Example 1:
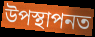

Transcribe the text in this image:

উপস্থাপনত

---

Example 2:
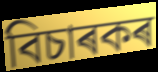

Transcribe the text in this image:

বিচাৰকৰ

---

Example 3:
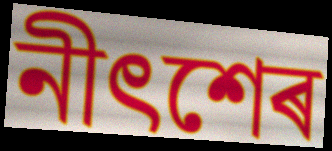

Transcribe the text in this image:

নীৎশেৰ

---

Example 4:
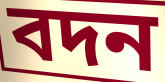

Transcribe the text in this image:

বদন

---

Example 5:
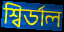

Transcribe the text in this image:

শ্বিৰ্ডাল